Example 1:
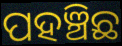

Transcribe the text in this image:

ପହଞ୍ଚିଛ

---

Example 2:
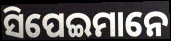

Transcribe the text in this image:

ସିପେଇମାନେ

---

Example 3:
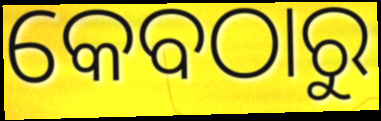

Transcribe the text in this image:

କେବଠାରୁ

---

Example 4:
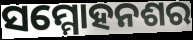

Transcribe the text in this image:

ସମ୍ମୋହନଶର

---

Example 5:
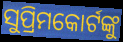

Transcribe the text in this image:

ସୁପ୍ରିମକୋର୍ଟଙ୍କୁ